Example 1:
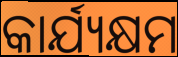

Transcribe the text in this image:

କାର୍ଯ୍ୟକ୍ଷମ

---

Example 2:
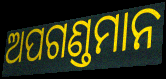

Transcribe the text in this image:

ଅପଗଣ୍ଡମାନ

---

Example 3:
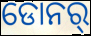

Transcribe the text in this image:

ଡୋନର୍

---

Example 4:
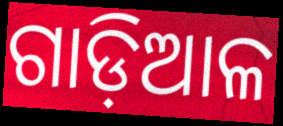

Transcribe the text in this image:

ଗାଡ଼ିଆଳ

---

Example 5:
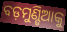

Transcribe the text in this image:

ବଡ଼ମୁଣ୍ଡିଆକୁ